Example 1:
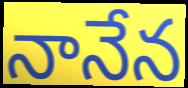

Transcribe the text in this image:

నానేన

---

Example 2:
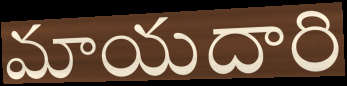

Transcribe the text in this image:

మాయదారి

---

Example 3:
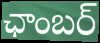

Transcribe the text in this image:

ఛాంబర్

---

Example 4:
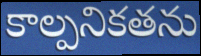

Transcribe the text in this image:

కాల్పనికతను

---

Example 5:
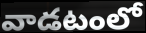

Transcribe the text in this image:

వాడటంలో